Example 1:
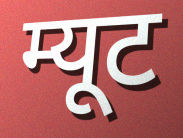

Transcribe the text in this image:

म्यूट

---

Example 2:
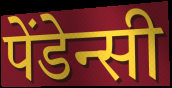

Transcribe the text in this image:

पेंडेन्सी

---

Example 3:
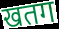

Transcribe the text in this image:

खतग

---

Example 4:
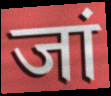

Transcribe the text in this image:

जां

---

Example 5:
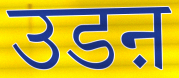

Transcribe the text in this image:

उडऩ